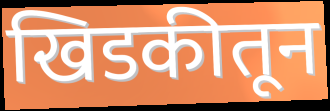
खिडकीतून